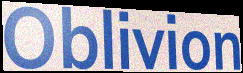
Oblivion